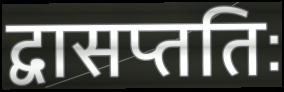
द्वासप्ततिः